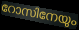
റോസിനേയും